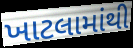
ખાટલામાંથી